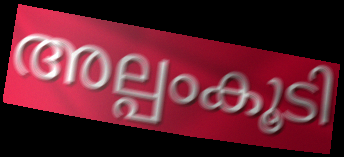
അല്പംകൂടി